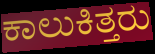
ಕಾಲುಕಿತ್ತರು